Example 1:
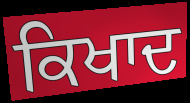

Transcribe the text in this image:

ਕਿਖਾਦ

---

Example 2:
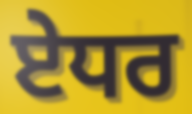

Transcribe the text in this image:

ਏਧਰ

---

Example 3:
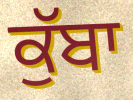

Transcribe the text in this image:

ਕੁੱਬਾ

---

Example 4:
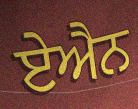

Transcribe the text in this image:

ਏਐਨ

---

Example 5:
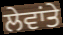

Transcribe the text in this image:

ਲੇਵਾਂਤੇ